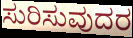
ಸುರಿಸುವುದರ